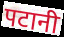
पटानी